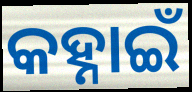
କହ୍ନାଇଁ